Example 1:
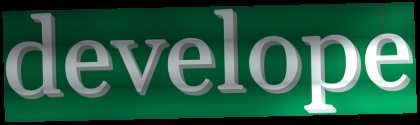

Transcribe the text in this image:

develope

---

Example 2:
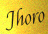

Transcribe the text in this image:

Jhoro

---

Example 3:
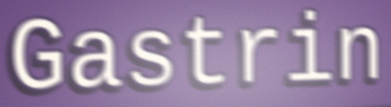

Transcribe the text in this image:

Gastrin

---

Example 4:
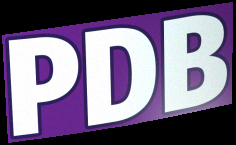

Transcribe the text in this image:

PDB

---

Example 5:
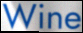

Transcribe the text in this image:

Wine